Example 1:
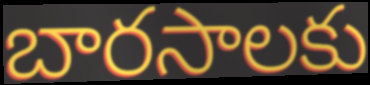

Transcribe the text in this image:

బారసాలకు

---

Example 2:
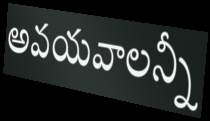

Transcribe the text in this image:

అవయవాలన్నీ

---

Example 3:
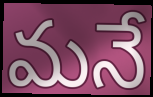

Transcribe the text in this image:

మనే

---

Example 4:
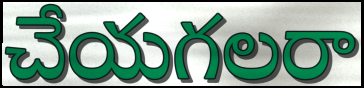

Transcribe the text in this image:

చేయగలరా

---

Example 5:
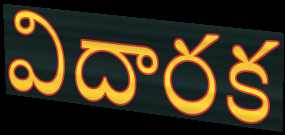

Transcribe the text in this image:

విదారక